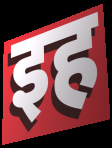
इह